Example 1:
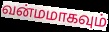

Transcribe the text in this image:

வன்மமாகவும்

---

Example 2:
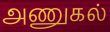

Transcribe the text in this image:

அணுகல்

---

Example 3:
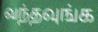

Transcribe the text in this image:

வந்தவுங்க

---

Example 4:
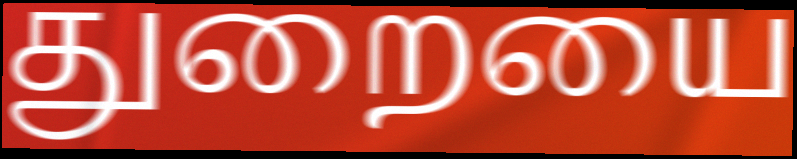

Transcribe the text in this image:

துறையை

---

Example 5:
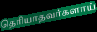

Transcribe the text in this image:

தெரியாதவர்களாய்